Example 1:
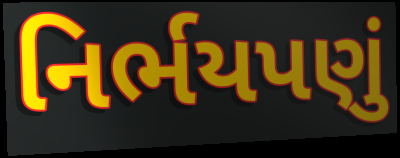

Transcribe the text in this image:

નિર્ભયપણું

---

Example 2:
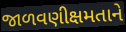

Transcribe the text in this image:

જાળવણીક્ષમતાને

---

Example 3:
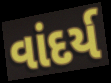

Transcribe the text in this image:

વાંદર્ય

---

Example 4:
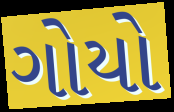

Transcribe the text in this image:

ગોયો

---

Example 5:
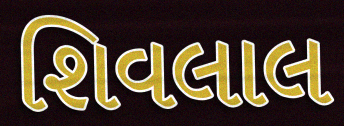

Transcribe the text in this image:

શિવલાલ